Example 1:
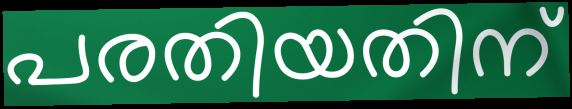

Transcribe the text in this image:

പരതിയതിന്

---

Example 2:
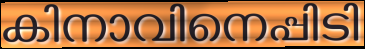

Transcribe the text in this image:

കിനാവിനെപ്പിടി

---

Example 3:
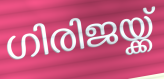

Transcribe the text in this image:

ഗിരിജയ്ക്ക്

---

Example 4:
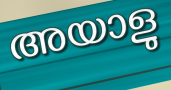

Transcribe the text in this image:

അയാളു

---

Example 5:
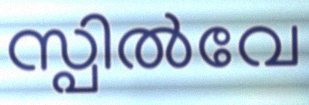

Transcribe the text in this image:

സ്പിൽവേ